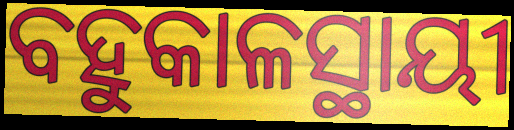
ବହୁକାଳସ୍ଥାୟୀ